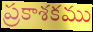
ప్రకాశకము